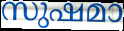
സുഷമാ